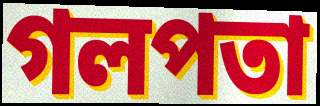
গলপতা